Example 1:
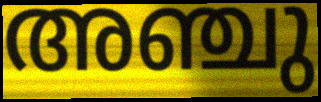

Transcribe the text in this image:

അഞ്ചു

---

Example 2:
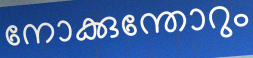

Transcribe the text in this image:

നോക്കുന്തോറും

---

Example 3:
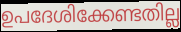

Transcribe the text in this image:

ഉപദേശിക്കേണ്ടതില്ല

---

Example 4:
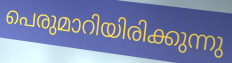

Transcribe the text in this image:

പെരുമാറിയിരിക്കുന്നു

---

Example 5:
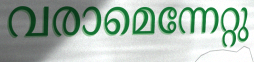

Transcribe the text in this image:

വരാമെന്നേറ്റു